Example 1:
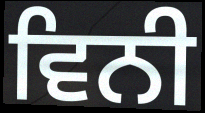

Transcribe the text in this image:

ਵਿਨੀ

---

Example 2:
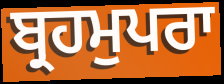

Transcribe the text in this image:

ਬ੍ਰਹਮੁਪਰਾ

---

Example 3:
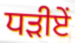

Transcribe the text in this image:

ਧੜੀਏਂ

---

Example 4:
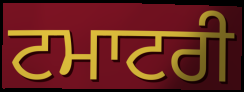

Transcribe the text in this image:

ਟਮਾਟਰੀ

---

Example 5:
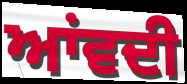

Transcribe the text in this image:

ਆਂਵਦੀ